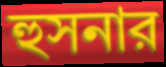
হুসনার